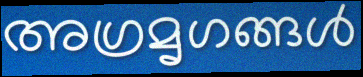
അഗ്രമൃഗങ്ങൾ